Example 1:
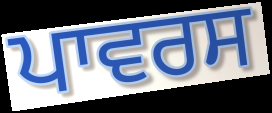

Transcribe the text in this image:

ਪਾਵਰਸ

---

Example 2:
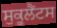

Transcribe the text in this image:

ਸੁਕੂਲੈਂਟਸ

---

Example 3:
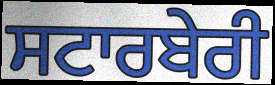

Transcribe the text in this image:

ਸਟਾਰਬੇਰੀ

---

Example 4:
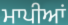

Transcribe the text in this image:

ਮਾਪੀਆਂ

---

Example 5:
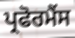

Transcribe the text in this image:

ਪ੍ਰਫੋਰਮੈਂਸ